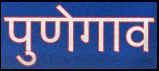
पुणेगाव